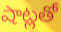
షాట్లతో